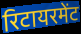
रिटायरमेंट